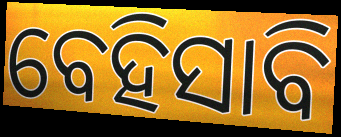
ବେହିସାବି